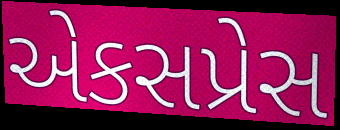
એકસપ્રેસ